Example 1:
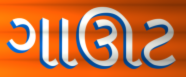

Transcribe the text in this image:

ગાઊટ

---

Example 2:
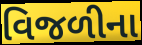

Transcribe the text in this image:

વિજળીના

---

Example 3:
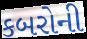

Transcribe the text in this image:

કબરોની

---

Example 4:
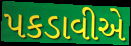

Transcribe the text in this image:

પકડાવીએ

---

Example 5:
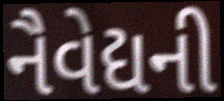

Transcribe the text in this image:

નૈવેદ્યની